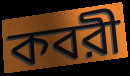
কবরী